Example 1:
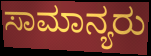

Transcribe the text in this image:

ಸಾಮಾನ್ಯರು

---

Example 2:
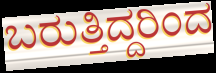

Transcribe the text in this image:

ಬರುತ್ತಿದ್ದರಿಂದ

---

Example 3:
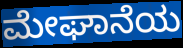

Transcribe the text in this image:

ಮೇಘಾನೆಯ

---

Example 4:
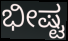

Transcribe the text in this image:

ಭೀಷ್ಟ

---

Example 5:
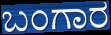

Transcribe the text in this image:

ಬಂಗಾರ